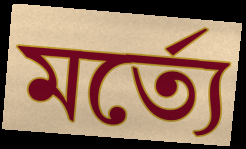
মর্ত্যে